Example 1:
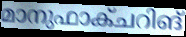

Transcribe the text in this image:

മാനുഫാക്ചറിങ്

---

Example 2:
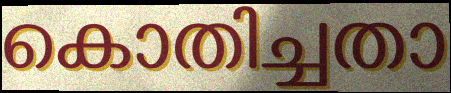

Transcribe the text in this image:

കൊതിച്ചതാ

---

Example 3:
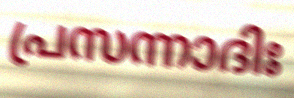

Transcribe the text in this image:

പ്രസന്നാദിഃ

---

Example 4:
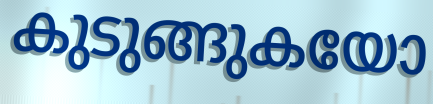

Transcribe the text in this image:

കുടുങ്ങുകയോ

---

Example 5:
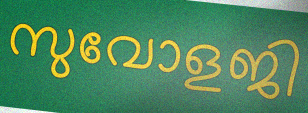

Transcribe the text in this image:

സുവോളജി